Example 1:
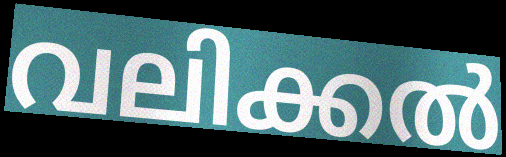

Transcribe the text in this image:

വലിക്കൽ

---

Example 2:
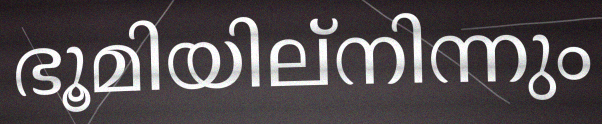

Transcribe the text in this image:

ഭൂമിയില്നിന്നും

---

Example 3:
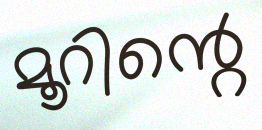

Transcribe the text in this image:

മൂറിന്റെ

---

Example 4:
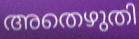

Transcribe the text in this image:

അതെഴുതി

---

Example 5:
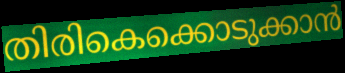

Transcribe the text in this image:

തിരികെക്കൊടുക്കാൻ